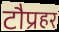
टौप्रहर